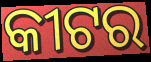
କୀଟର